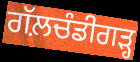
ਗੱਲ਼ਚੰਡੀਗੜ੍ਹ